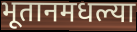
भूतानमधल्या